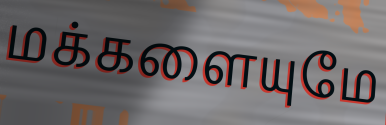
மக்களையுமே